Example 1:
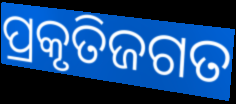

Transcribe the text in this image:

ପ୍ରକୃତିଜଗତ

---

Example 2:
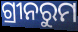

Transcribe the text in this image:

ଗ୍ରୀନରୁମ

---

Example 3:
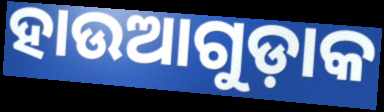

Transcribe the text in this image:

ହାଉଆଗୁଡ଼ାକ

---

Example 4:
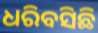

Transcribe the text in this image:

ଧରିବସିଛି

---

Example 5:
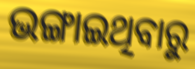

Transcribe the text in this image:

ଭଙ୍ଗାଇଥିବାରୁ